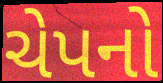
ચેપનો